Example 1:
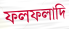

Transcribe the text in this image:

ফলফলাদি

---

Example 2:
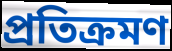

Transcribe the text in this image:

প্রতিক্রমণ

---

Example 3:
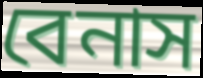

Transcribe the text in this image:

বেনাস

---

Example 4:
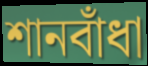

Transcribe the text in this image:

শানবাঁধা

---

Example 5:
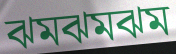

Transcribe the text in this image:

ঝমঝমঝম